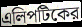
এলিপটিকের